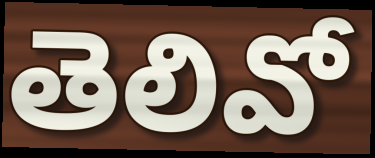
తెలివో